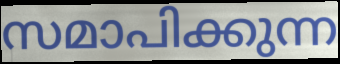
സമാപിക്കുന്ന